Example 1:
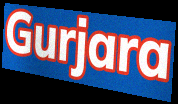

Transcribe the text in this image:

Gurjara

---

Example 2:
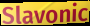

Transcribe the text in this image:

Slavonic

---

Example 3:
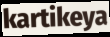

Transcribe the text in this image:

kartikeya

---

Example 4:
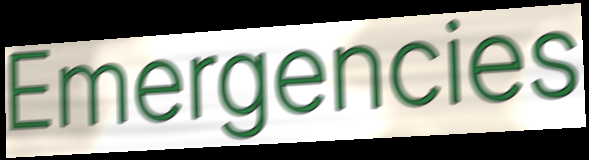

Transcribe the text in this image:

Emergencies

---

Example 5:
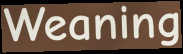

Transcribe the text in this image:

Weaning